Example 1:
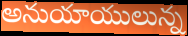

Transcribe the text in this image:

అనుయాయులున్న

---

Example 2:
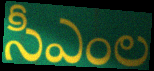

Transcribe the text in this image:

సీఎంల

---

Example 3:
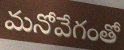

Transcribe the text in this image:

మనోవేగంతో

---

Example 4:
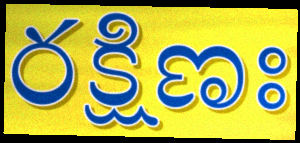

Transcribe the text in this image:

రక్షిణః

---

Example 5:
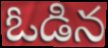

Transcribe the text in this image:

ఓడిన